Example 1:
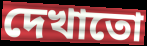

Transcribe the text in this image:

দেখাতো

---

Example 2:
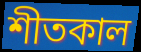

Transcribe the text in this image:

শীতকাল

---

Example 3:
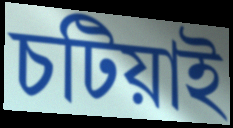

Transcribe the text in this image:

চটিয়াই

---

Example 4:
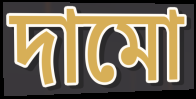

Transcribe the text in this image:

দামো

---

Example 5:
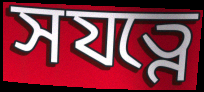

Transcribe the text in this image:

সযত্নে